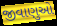
જીવાણુઓ